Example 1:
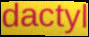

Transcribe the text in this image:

dactyl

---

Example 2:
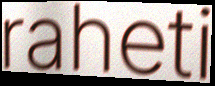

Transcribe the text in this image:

raheti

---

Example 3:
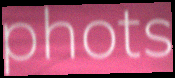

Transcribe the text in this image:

phots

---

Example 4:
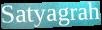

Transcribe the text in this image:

Satyagrah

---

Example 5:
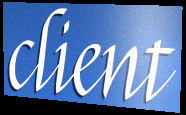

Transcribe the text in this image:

client